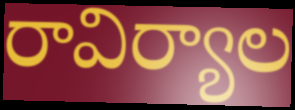
రావిర్యాల